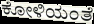
ಕೋಳಿಯಂತೆ